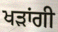
ਖੜਾਂਗੀ